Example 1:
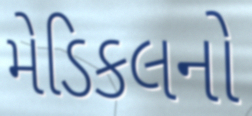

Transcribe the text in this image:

મેડિકલનો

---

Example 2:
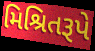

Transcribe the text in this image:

મિશ્રિતરૂપે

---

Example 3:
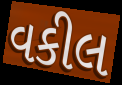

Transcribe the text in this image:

વકીલ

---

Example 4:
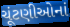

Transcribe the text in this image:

ચૂંટણીઓનાં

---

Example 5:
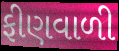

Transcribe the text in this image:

ફીણવાળી